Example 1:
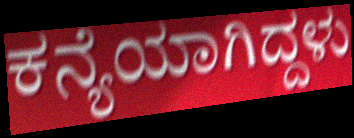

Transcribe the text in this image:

ಕನ್ಯೆಯಾಗಿದ್ದಳು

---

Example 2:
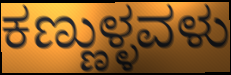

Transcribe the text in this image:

ಕಣ್ಣುಳ್ಳವಳು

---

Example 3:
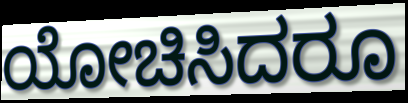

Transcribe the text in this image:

ಯೋಚಿಸಿದರೂ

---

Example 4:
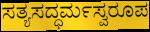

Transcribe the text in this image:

ಸತ್ಯಸದ್ಧರ್ಮಸ್ವರೂಪ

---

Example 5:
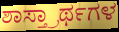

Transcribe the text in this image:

ಶಾಸ್ತ್ರಾರ್ಥಗಳ